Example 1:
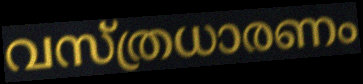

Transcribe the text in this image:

വസ്ത്രധാരണം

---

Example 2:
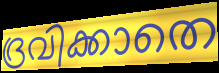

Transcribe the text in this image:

ദ്രവിക്കാതെ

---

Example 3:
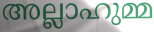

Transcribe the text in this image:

അല്ലാഹുമ്മ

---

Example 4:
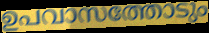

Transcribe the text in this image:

ഉപവാസത്തോടും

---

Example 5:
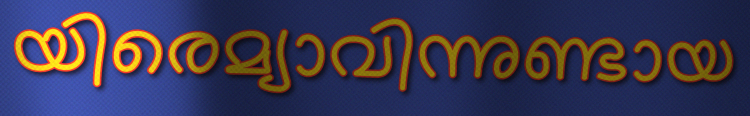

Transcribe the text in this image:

യിരെമ്യാവിന്നുണ്ടായ